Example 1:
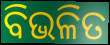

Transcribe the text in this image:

ବିଭଳିତ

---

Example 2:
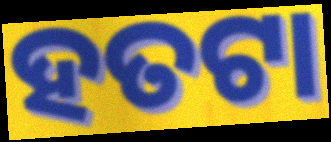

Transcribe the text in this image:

ହତଟା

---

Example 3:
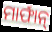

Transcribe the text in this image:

ମାର୍ଫାନ୍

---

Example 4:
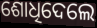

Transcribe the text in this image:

ଶୋଧିଦେଲେ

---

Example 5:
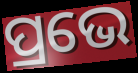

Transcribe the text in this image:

ପ୍ରଭେ